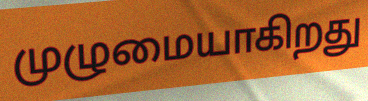
முழுமையாகிறது